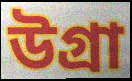
উগ্রা